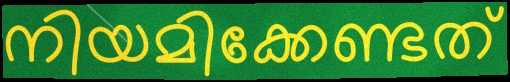
നിയമിക്കേണ്ടത്